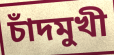
চাঁদমুখী